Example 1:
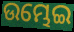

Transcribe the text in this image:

ଉମ୍ଭେଇ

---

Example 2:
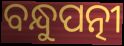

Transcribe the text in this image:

ବନ୍ଧୁପତ୍ନୀ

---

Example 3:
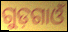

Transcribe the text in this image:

ଗୁଡ଼ଗାଓଁ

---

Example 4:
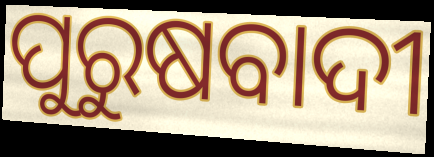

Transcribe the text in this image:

ପୁରୁଷବାଦୀ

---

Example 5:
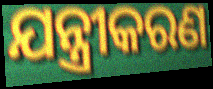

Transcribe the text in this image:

ଯନ୍ତ୍ରୀକରଣ